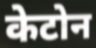
केटोन